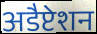
अडैप्टेशन